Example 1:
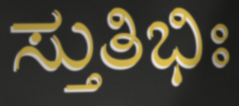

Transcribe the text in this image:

ಸ್ತುತಿಭಿಃ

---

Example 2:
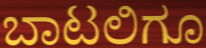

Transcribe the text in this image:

ಬಾಟಲಿಗೂ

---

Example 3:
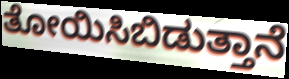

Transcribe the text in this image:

ತೋಯಿಸಿಬಿಡುತ್ತಾನೆ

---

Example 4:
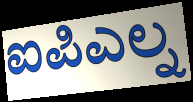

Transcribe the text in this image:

ಐಪಿಎಲ್ನ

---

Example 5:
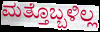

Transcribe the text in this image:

ಮತ್ತೊಬ್ಬಳಿಲ್ಲ